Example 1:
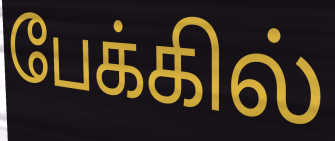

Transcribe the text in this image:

பேக்கில்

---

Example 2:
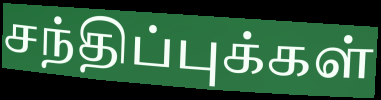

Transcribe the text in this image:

சந்திப்புக்கள்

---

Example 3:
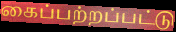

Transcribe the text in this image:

கைப்பற்றப்பட்டு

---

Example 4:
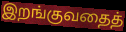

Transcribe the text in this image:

இறங்குவதைத்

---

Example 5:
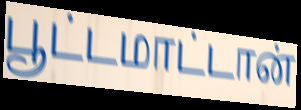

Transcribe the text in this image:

பூட்டமாட்டான்